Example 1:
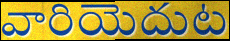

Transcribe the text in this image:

వారియెదుట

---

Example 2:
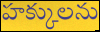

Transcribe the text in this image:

హక్కులను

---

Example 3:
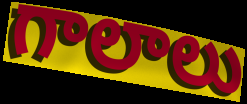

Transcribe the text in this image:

గాలాలు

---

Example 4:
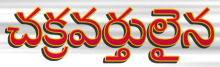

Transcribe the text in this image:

చక్రవర్తులైన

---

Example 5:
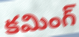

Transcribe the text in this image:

కమింగ్